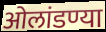
ओलांडण्या